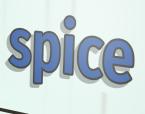
spice